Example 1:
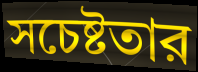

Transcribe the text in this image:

সচেষ্টতার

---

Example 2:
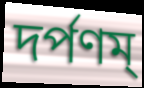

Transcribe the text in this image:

দর্পণম্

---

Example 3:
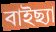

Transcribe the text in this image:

বাইছ্যা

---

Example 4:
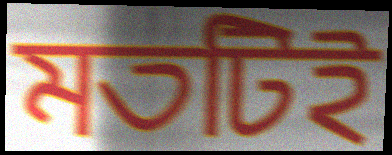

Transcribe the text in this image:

মতটিই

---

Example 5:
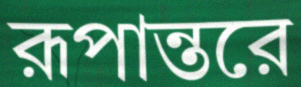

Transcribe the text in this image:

রূপান্তরে